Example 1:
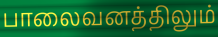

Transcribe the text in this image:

பாலைவனத்திலும்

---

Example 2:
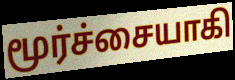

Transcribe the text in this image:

மூர்ச்சையாகி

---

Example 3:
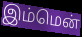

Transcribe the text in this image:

இம்மென்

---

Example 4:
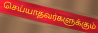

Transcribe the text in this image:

செய்யாதவர்களுக்கும்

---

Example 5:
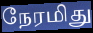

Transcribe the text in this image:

நேரமிது